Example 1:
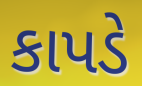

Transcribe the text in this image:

કાપડે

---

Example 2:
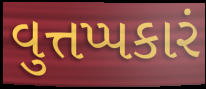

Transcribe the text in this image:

વુત્તપ્પકારં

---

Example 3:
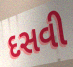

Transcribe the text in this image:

દસવી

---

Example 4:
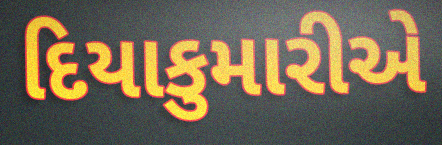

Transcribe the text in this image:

દિયાકુમારીએ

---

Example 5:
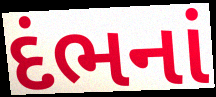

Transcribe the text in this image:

દંભનાં